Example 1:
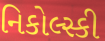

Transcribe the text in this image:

નિકોલ્સ્કી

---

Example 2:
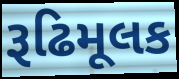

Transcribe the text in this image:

રૂઢિમૂલક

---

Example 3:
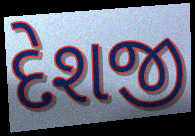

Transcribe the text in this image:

દેશજી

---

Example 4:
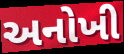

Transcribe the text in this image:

અનોખી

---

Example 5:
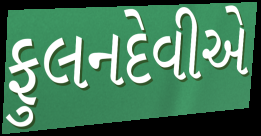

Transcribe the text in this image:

ફુલનદેવીએ